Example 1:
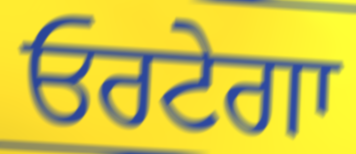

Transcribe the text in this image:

ਓਰਟੇਗਾ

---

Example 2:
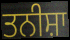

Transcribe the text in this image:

ਤਨੀਸ਼ਾ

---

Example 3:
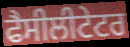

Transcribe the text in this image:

ਫੈਸੀਲੀਟੇਟਰ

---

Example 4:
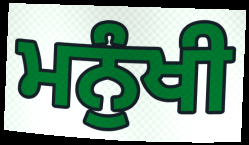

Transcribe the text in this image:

ਮਨੁੰਖੀ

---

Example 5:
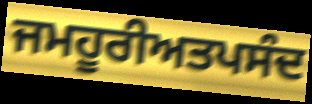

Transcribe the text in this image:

ਜਮਹੂਰੀਅਤਪਸੰਦ